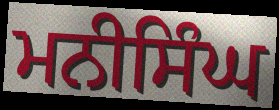
ਮਨੀਸਿੰਘ